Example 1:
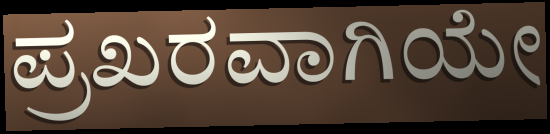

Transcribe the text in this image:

ಪ್ರಖರವಾಗಿಯೇ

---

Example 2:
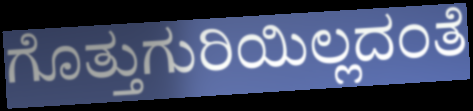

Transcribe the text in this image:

ಗೊತ್ತುಗುರಿಯಿಲ್ಲದಂತೆ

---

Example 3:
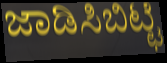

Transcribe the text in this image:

ಜಾಡಿಸಿಬಿಟ್ಟೆ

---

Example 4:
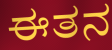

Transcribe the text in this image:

ಈತನ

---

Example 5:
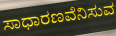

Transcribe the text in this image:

ಸಾಧಾರಣವೆನಿಸುವ